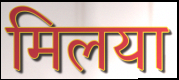
मिलया